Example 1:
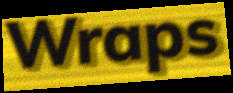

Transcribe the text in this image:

Wraps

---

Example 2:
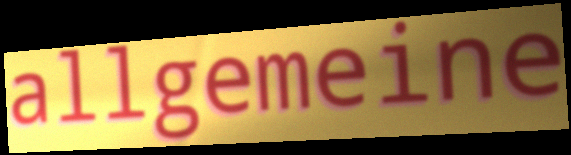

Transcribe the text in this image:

allgemeine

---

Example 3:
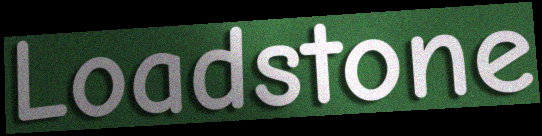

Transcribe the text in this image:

Loadstone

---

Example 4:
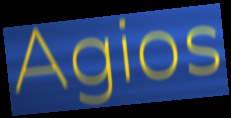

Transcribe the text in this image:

Agios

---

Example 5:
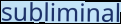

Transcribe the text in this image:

subliminal